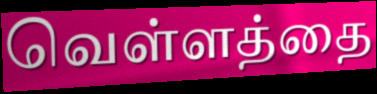
வெள்ளத்தை